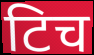
टिच